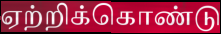
ஏற்றிக்கொண்டு